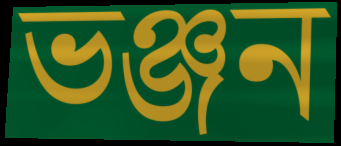
ভঞ্জন